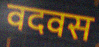
वदवस